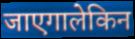
जाएगालेकिन